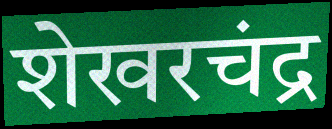
शेखरचंद्र